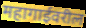
महागाईवरील